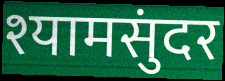
श्यामसुंदर